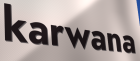
karwana